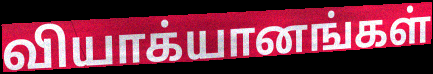
வியாக்யானங்கள்